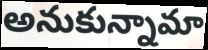
అనుకున్నామా